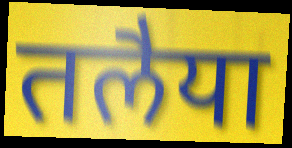
तलैया